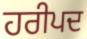
ਹਰੀਪਦ